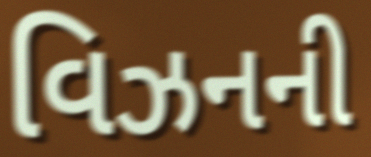
વિઝનની